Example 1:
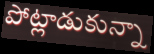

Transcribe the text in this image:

పోట్లాడుకున్నా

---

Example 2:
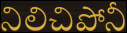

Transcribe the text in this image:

నిలిచిపోనీ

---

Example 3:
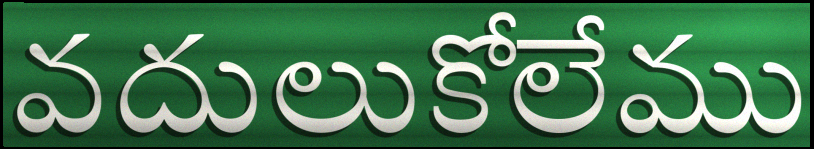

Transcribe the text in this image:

వదులుకోలేము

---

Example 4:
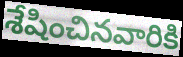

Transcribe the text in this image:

శేషించినవారికి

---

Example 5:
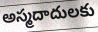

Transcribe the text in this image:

అస్మదాదులకు